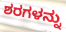
ಶರಗಳನ್ನು